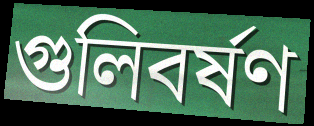
গুলিবর্ষণ